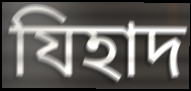
যিহাদ